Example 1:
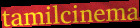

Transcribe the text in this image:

tamilcinema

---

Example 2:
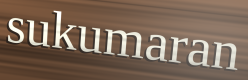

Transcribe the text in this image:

sukumaran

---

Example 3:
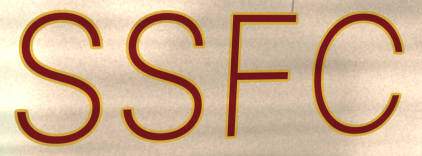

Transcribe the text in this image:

SSFC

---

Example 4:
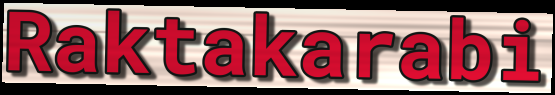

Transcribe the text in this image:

Raktakarabi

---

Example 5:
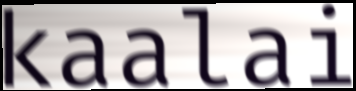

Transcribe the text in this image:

kaalai